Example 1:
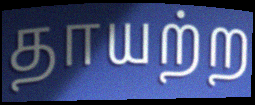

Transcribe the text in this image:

தாயற்ற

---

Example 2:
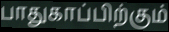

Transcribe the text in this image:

பாதுகாப்பிற்கும்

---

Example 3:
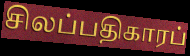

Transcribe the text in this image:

சிலப்பதிகாரப்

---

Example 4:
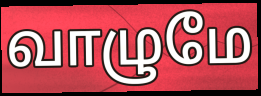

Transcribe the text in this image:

வாழுமே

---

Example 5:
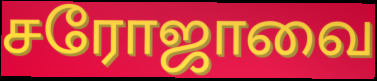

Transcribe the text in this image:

சரோஜாவை